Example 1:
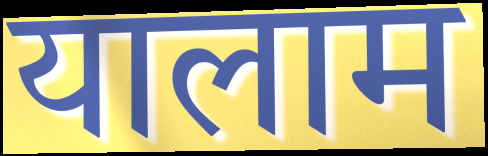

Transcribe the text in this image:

यालाम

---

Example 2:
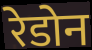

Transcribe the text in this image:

रेडोन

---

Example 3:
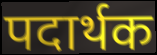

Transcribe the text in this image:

पदार्थक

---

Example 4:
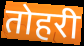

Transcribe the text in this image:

तोहरी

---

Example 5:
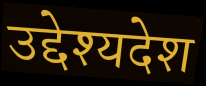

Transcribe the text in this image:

उद्देश्यदेश